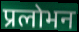
प्रलोभन